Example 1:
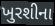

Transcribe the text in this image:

ખુરશીના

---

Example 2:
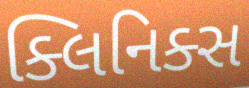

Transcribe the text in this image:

ક્લિનિક્સ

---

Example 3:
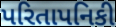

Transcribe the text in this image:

પરિતાપનિકી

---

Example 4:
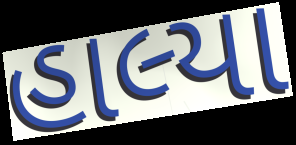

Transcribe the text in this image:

હાલ્યા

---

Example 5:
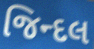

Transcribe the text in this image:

જિન્દલ